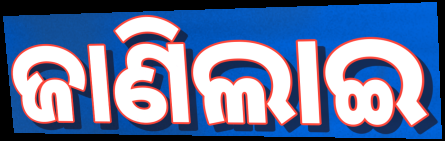
ଜାଣିଲାଇ